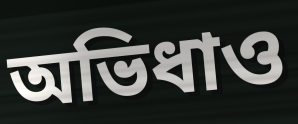
অভিধাও